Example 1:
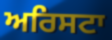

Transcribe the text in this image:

ਅਰਿਸਟਾ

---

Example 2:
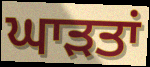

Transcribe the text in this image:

ਘਾਡ਼ਤਾਂ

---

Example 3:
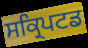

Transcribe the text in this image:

ਸਕ੍ਰਿਪਟਡ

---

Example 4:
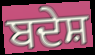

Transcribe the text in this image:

ਬਦੇਸ਼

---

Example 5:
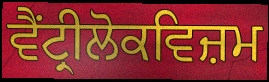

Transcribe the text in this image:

ਵੈਂਟ੍ਰੀਲੋਕਵਿਜ਼ਮ